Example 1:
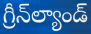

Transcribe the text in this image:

గ్రీన్‌ల్యాండ్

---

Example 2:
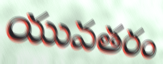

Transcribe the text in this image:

యువతరం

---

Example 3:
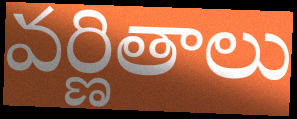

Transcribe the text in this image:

వర్ణితాలు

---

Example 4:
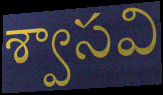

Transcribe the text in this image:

శ్వాసవి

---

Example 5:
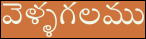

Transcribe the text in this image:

వెళ్ళగలము